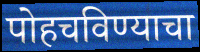
पोहचविण्याचा